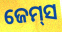
ଜେମ୍‌ସ